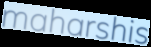
maharshis